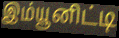
இம்யூனிட்டி